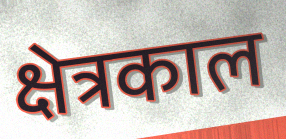
क्षेत्रकाल